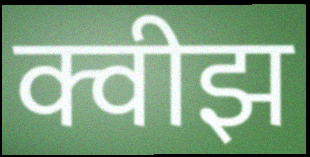
क्वीझ